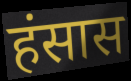
हंसास